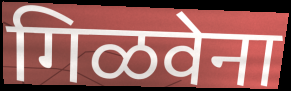
गिळवेना